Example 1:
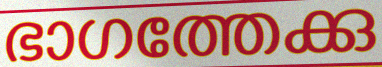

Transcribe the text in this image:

ഭാഗത്തേക്കു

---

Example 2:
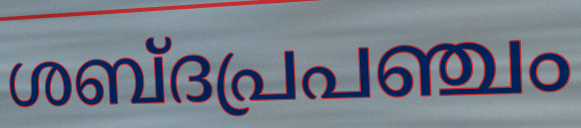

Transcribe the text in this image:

ശബ്ദപ്രപഞ്ചം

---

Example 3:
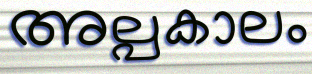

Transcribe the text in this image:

അല്പകാലം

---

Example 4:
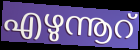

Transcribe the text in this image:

എഴുന്നൂറ്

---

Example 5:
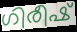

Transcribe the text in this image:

ഗിരീഷ്